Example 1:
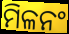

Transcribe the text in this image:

ମିଳନଂ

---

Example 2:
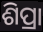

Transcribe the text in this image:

ଶିପ୍ରା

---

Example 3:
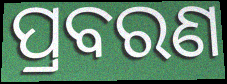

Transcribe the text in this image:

ପ୍ରବରଣ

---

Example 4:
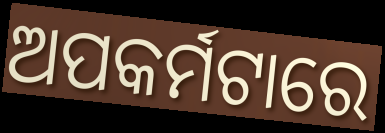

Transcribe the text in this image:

ଅପକର୍ମଟାରେ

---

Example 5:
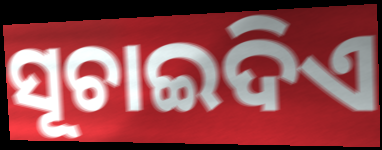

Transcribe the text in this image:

ସୂଚାଇଦିଏ